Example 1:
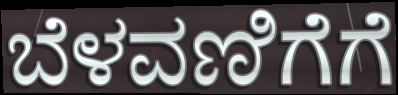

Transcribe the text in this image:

ಬೆಳವಣಿಗೆಗೆ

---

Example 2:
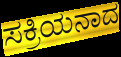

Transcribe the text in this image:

ಸಕ್ರಿಯನಾದ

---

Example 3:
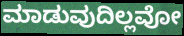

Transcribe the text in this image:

ಮಾಡುವುದಿಲ್ಲವೋ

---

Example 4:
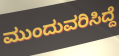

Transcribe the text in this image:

ಮುಂದುವರಿಸಿದ್ದೆ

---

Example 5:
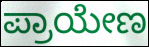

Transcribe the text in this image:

ಪ್ರಾಯೇಣ